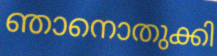
ഞാനൊതുക്കി